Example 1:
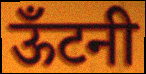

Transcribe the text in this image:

ऊँटनी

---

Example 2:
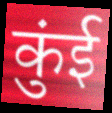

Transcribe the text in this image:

कुंई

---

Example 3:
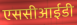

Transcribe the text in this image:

एससीआईडी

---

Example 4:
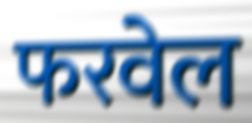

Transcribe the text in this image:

फरवेल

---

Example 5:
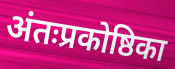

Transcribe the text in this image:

अंतःप्रकोष्ठिका